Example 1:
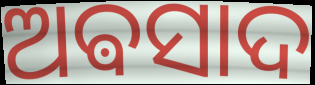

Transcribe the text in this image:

ଅଵସାଦ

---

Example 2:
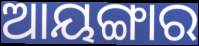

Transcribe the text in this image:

ଆୟଙ୍ଗାର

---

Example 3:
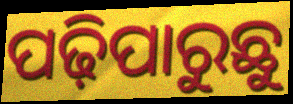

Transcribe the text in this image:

ପଢ଼ିପାରୁଛୁ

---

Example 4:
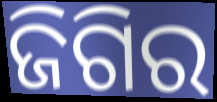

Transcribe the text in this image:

ଜିଗିର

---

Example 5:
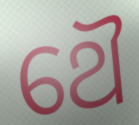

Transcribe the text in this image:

ଥୈ